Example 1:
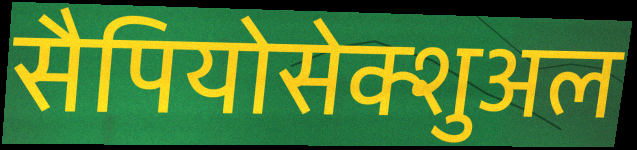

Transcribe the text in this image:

सैपियोसेक्शुअल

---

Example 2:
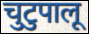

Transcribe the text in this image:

चुटुपालू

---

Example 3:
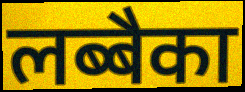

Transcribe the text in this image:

लब्बैका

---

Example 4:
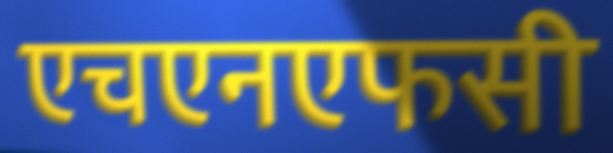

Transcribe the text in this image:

एचएनएफसी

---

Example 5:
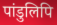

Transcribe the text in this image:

पांडुलिपि